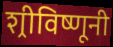
श्रीविष्णूनी